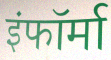
इंफॉर्मा